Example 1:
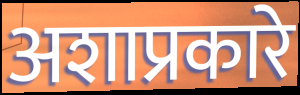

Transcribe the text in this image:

अशाप्रकारे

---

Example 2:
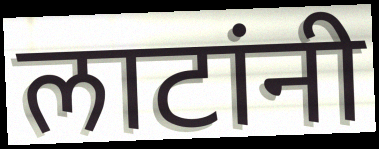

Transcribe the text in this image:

लाटांनी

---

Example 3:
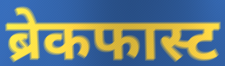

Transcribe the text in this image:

ब्रेकफास्ट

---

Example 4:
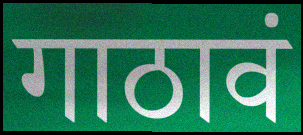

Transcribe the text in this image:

गाठावं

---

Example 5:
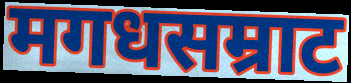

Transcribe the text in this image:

मगधसम्राट